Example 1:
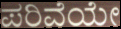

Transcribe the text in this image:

ಪರಿವೆಯೇ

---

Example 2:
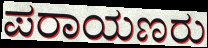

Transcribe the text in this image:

ಪರಾಯಣರು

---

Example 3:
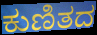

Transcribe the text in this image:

ಕುಣಿತದ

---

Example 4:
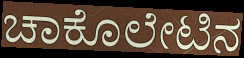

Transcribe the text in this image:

ಚಾಕೊಲೇಟಿನ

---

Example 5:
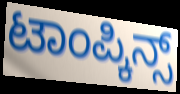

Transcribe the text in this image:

ಟಾಂಪ್ಕಿನ್ಸ್